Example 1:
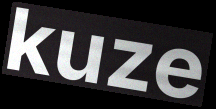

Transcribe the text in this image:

kuze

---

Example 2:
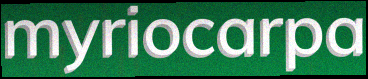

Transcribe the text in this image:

myriocarpa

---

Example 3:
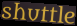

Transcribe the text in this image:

shuttle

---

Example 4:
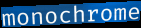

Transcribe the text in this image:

monochrome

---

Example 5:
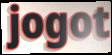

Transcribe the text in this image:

jogot